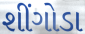
શીંગોડા